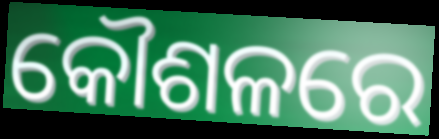
କୌଶଳରେ